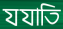
যযাতি